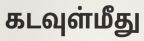
கடவுள்மீது